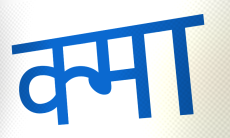
क्मा